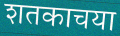
शतकाचया